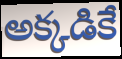
అక్కడికే